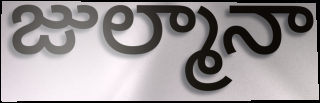
జుల్మానా